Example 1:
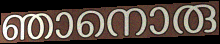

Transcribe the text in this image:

ഞാനൊരു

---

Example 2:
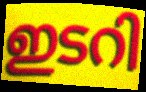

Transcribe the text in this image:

ഇടറി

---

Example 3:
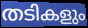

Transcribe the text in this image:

തടികളും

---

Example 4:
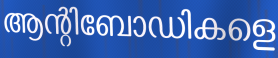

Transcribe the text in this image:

ആന്റിബോഡികളെ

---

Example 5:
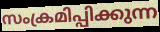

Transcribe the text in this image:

സംക്രമിപ്പിക്കുന്ന